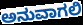
ಅನುವಾಗಲಿ